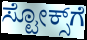
ಸ್ಟೋಕ್ಸ್‌ಗೆ